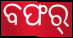
ବଫର୍